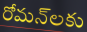
రోమన్‌లకు